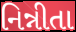
નિન્નીતા